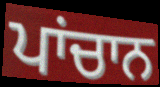
ਪਾਂਚਾਨ